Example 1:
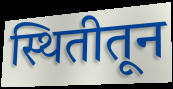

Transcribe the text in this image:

स्थितीतून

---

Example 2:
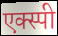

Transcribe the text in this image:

एक्स्पी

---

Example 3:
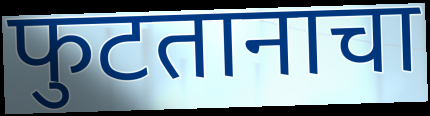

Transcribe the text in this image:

फुटतानाचा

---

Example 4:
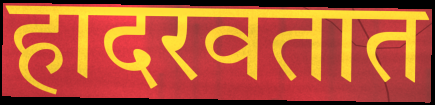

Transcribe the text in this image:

हादरवतात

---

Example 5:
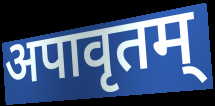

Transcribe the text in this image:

अपावृतम्